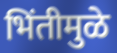
भिंतीमुळे